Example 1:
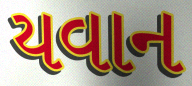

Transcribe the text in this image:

યવાન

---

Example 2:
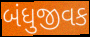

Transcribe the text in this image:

બંધુજીવક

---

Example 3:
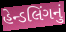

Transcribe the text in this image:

હેન્ડલિંગનું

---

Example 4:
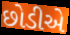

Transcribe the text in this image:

છોડીએ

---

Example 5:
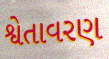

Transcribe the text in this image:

શ્વેતાવરણ